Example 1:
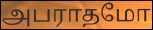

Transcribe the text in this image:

அபராதமோ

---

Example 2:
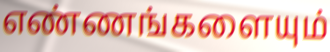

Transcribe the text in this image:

எண்ணங்களையும்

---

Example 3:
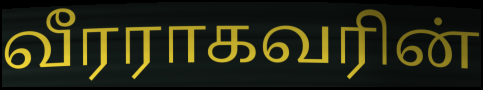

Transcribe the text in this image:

வீரராகவரின்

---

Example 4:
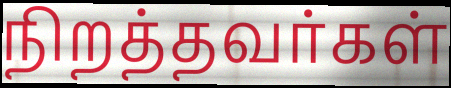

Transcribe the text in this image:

நிறத்தவர்கள்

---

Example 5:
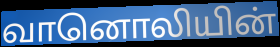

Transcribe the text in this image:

வானொலியின்